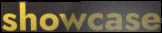
showcase